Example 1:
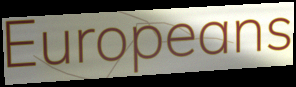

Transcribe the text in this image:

Europeans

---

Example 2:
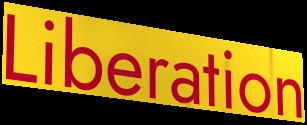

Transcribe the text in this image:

Liberation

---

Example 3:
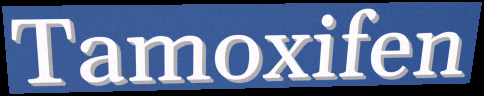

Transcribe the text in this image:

Tamoxifen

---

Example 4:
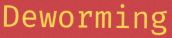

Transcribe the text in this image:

Deworming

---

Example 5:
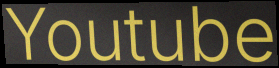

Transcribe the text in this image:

Youtube